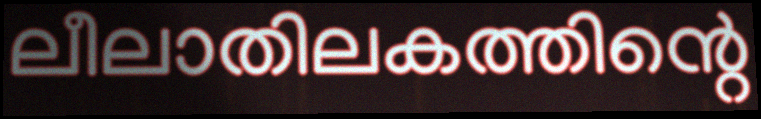
ലീലാതിലകത്തിന്റെ